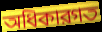
অধিকারগত